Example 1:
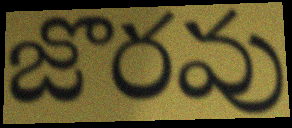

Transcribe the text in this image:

జొరవు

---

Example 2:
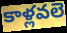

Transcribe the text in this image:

కాళ్లవలె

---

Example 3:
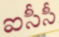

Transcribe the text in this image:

ఐసీసీ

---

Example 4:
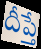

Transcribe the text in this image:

దీప్తే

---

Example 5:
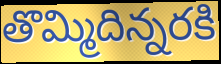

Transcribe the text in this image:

తొమ్మిదిన్నరకి